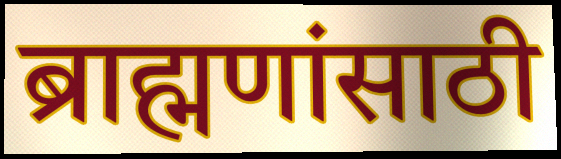
ब्राह्मणांसाठी